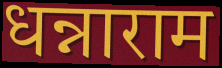
धन्नाराम